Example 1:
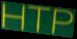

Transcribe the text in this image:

HTP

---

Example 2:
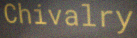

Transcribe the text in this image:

Chivalry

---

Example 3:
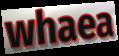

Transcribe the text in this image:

whaea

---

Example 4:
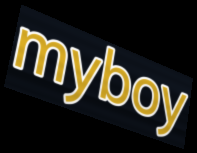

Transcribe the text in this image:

myboy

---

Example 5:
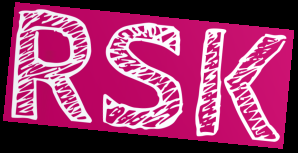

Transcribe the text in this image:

RSK